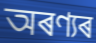
অৰণ্যৰ